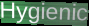
Hygienic